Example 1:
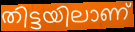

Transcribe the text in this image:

തിട്ടയിലാണ്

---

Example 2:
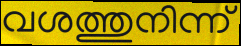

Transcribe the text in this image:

വശത്തുനിന്ന്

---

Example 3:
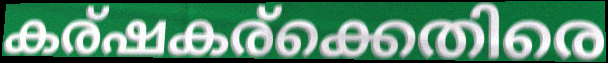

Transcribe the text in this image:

കര്ഷകര്ക്കെതിരെ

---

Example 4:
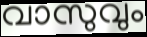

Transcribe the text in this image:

വാസുവും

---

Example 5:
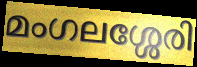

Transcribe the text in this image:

മംഗലശ്ശേരി